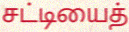
சட்டியைத்